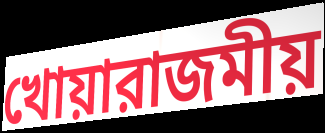
খোয়ারাজমীয়